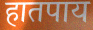
हातपाय